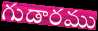
గుడారము